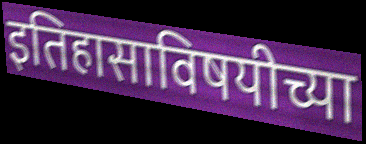
इतिहासाविषयीच्या